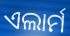
ଏଲାର୍ମ